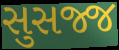
સુસજ્જ